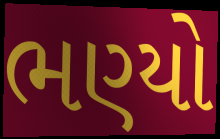
ભણ્યો